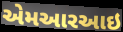
એમઆરઆઇ